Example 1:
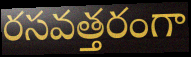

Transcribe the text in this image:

రసవత్తరంగా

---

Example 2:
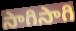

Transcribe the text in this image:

సాగిసాగి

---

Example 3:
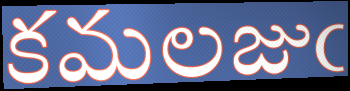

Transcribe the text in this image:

కమలజుఁ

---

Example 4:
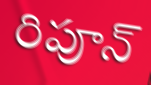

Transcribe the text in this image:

రిపూన్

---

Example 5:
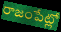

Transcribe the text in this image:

రాజంపేట్లో